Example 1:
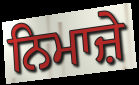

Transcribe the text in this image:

ਨਿਮਾਜ਼ੇ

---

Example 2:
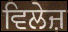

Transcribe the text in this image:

ਵਿਲੇਜ਼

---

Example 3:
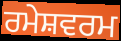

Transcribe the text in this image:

ਰਮੇਸ਼ਵਰਮ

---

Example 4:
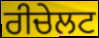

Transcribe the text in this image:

ਰੀਚੇਲਟ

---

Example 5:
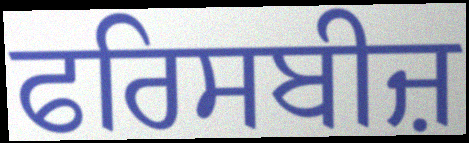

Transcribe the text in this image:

ਫਰਿਸਬੀਜ਼